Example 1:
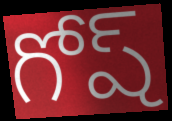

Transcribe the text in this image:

గోష్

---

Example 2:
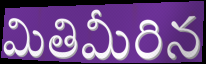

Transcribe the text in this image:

మితిమీరిన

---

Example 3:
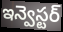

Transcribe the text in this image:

ఇన్వెస్టర్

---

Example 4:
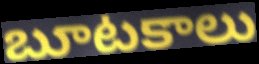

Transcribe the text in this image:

బూటకాలు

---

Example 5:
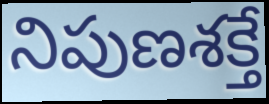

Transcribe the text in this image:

నిపుణశక్తే